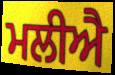
ਮਲੀਐ